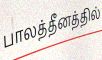
பாலத்தீனத்தில்